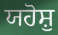
ਯਹੋਸ਼ੁ